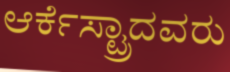
ಆರ್ಕೆಸ್ಟ್ರಾದವರು